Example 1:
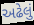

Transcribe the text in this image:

અઢેલું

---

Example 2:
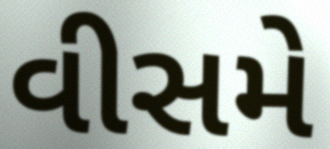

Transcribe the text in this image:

વીસમે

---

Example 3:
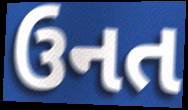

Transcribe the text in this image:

ઉનત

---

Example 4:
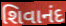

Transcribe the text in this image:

શિવાનંદ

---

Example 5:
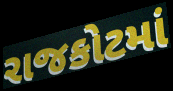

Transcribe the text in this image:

રાજકોટમાં